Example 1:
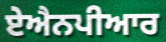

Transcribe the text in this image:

ਏਐਨਪੀਆਰ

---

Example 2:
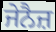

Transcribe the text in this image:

ਜੇਨੈਜ਼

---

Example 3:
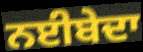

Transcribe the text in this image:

ਨਈਬੇਦਾ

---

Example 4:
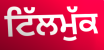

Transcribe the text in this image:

ਟਿੱਲਮੁੱਕ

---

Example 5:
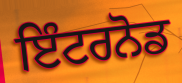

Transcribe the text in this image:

ਇੰਟਰਨੋਡ